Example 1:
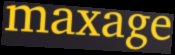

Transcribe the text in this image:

maxage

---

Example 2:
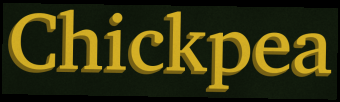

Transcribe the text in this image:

Chickpea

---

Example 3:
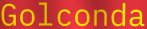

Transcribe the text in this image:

Golconda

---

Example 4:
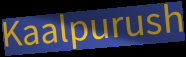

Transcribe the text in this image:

Kaalpurush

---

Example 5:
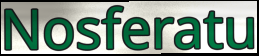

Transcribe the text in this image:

Nosferatu